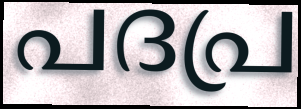
പദപ്ര